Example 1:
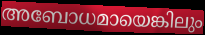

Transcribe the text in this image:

അബോധമായെങ്കിലും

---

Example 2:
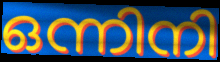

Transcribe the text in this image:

ഒന്നിനി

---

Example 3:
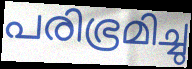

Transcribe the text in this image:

പരിഭ്രമിച്ചു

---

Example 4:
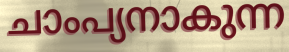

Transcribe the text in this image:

ചാംപ്യനാകുന്ന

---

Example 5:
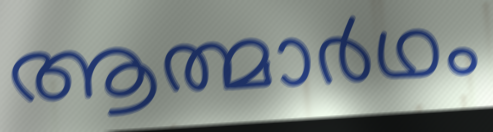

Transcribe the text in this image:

ആത്മാർഥം